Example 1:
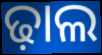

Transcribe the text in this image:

ଢ଼ାଲ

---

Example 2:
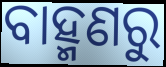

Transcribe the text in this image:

ବାହ୍ମଣରୁ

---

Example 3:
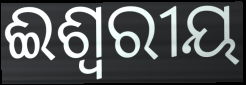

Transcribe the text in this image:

ଈଶ୍ବରୀୟ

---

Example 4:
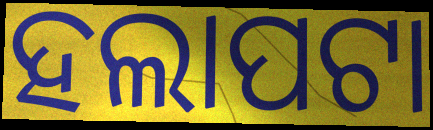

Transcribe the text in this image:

ହଲାପଟା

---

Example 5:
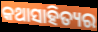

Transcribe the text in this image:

କଥାସାହିତ୍ୟର